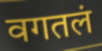
वगतलं